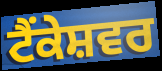
ਟੈਂਕੇਸ਼ਵਰ